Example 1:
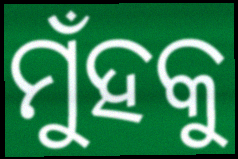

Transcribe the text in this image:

ମୁଁହକୁ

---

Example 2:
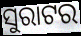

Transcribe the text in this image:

ସୁରାଟର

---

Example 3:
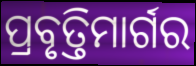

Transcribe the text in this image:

ପ୍ରବୃତ୍ତିମାର୍ଗର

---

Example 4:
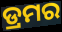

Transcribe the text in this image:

ଡ୍ରମର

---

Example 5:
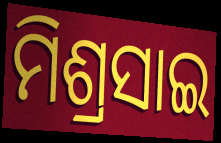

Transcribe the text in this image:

ମିଶ୍ରସାଇ